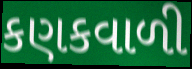
કણકવાળી